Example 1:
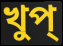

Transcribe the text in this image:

খুপ্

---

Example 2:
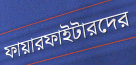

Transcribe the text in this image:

ফায়ারফাইটারদের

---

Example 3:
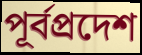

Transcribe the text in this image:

পূর্বপ্রদেশ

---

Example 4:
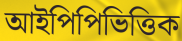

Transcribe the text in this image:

আইপিপিভিত্তিক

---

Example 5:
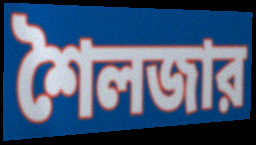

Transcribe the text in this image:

শৈলজার